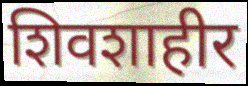
शिवशाहीर